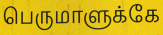
பெருமாளுக்கே